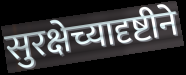
सुरक्षेच्यादृष्टीने